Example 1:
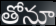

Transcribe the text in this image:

తోనూ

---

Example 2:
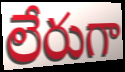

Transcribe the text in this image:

లేరుగా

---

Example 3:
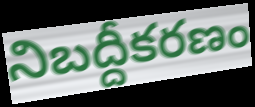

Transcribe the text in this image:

నిబద్దీకరణం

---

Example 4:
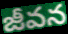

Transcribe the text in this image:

జీవన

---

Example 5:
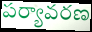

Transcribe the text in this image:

పర్యావరణ